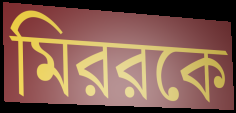
মিররকে